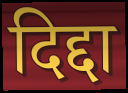
दिद्दा